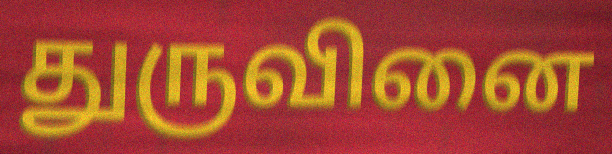
துருவினை